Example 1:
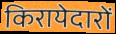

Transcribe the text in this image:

किरायेदारों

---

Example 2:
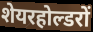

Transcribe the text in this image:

शेयरहोल्डरों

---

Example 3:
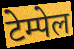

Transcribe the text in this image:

टेम्पेल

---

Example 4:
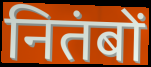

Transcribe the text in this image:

नितंबों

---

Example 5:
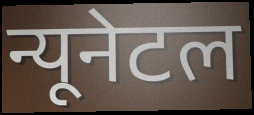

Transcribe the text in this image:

न्यूनेटल